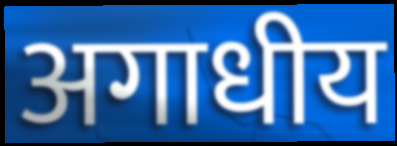
अगाधीय